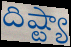
దిష్ట్యా